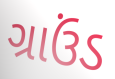
ગ્રાઉંડ